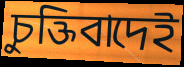
চুক্তিবাদেই